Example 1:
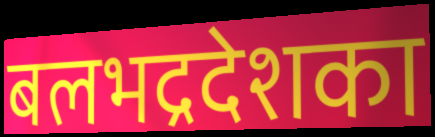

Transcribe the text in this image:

बलभद्रदेशका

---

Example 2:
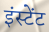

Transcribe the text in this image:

इंस्टेंट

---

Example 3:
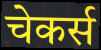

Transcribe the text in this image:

चेकर्स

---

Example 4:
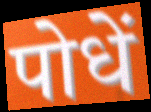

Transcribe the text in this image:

पोधें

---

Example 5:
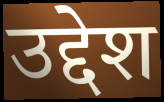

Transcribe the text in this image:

उद्देश